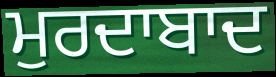
ਮੁਰਦਾਬਾਦ